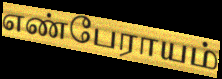
எண்பேராயம்